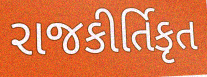
રાજકીર્તિકૃત